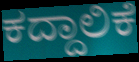
ಕದ್ದಾಲಿಕೆ